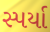
સ્પર્યા